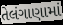
તેલંગાણામાં